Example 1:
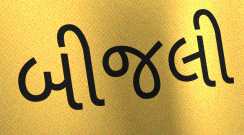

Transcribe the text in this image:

બીજલી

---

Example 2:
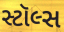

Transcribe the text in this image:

સ્ટૉલ્સ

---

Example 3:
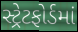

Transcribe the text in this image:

સ્ટ્રેટફોર્ડમાં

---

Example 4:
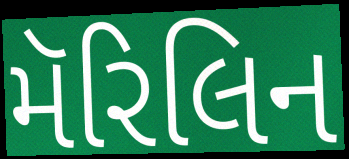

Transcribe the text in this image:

મૅરિલિન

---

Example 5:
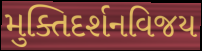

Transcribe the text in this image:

મુક્તિદર્શનવિજય